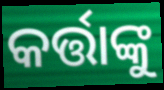
କର୍ତ୍ତାଙ୍କୁ